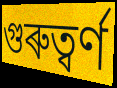
গুৰুত্ৱৰ্ণ